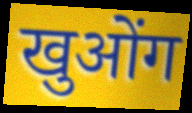
खुओंग